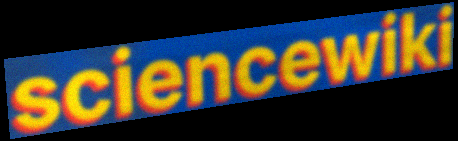
sciencewiki